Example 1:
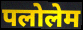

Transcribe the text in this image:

पलोलेम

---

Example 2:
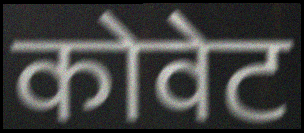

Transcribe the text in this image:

कोवेट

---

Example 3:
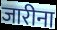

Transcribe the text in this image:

जारीना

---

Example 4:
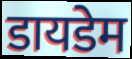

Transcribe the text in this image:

डायडेम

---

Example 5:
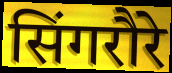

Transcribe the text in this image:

सिंगरौरे